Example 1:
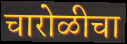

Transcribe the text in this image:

चारोळीचा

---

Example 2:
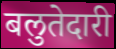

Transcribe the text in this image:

बलुतेदारी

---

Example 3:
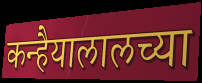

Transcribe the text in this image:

कन्हैयालालच्या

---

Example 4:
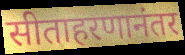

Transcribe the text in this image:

सीताहरणानंतर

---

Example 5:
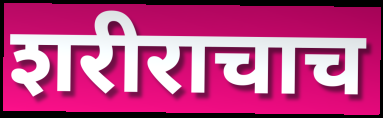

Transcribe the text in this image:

शरीराचाच